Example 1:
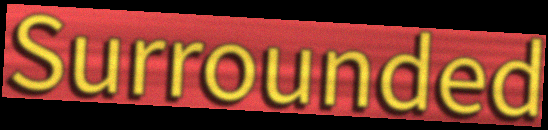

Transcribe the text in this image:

Surrounded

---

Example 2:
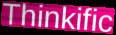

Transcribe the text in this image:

Thinkific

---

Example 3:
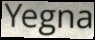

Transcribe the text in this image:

Yegna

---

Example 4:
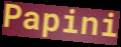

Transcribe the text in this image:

Papini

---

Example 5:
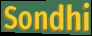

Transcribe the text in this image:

Sondhi